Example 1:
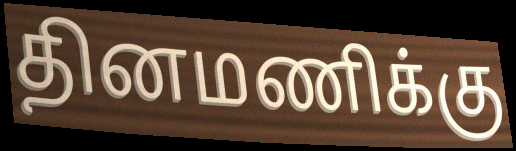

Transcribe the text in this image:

தினமணிக்கு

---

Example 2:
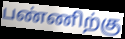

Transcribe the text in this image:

பண்ணிற்கு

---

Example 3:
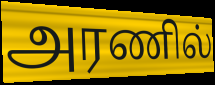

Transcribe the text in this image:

அரணில்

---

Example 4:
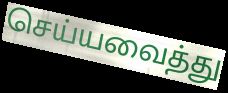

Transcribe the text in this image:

செய்யவைத்து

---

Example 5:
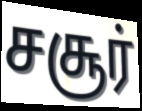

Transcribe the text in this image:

சசூர்